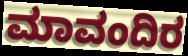
ಮಾವಂದಿರ